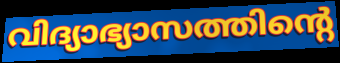
വിദ്യാഭ്യാസത്തിന്റെ